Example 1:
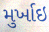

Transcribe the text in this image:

મુર્ખાઇ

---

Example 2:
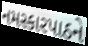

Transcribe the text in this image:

નમસ્કારપાઠને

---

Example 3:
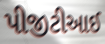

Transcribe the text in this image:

પીજીટીઆઈ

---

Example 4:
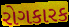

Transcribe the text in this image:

રોગકારક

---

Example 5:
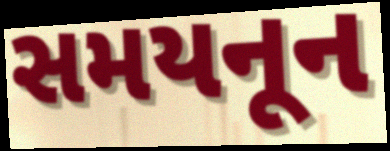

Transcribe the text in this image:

સમયનૂન